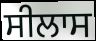
ਸੀਲਾਸ